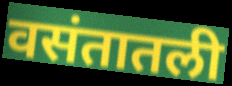
वसंतातली